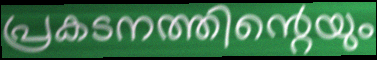
പ്രകടനത്തിന്റെയും